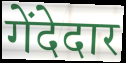
गेंदेदार